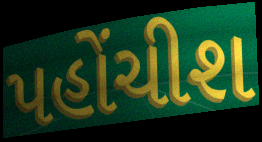
પહોંચીશ